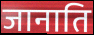
जानाति